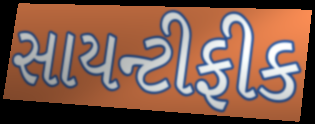
સાયન્ટીફીક